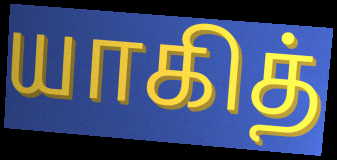
யாகித்